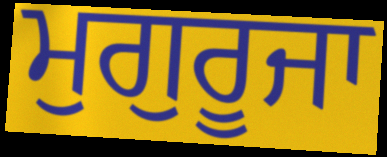
ਮੁਗੁਰੂਜਾ